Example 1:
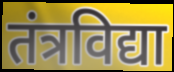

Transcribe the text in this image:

तंत्रविद्या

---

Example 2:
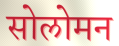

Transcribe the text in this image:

सोलोमन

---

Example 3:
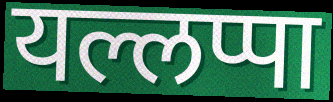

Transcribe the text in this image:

यल्लप्पा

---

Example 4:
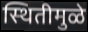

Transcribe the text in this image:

स्थितीमुळे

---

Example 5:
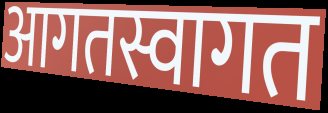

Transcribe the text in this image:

आगतस्वागत